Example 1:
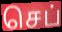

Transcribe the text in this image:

செப்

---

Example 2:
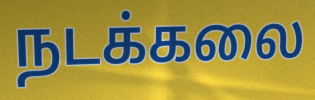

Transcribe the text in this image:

நடக்கலை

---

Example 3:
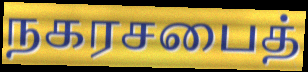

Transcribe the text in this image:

நகரசபைத்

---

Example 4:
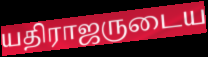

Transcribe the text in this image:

யதிராஜருடைய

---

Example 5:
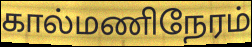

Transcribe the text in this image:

கால்மணிநேரம்